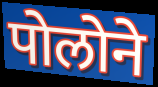
पोलोने